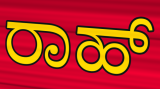
ರಾಹ್